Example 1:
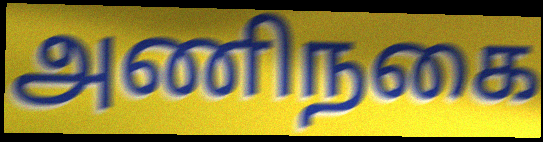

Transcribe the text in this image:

அணிநகை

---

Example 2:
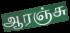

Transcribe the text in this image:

ஆரஞ்சு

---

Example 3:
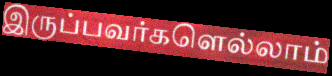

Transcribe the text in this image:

இருப்பவர்களெல்லாம்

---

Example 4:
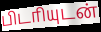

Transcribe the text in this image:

பிடரியுடன்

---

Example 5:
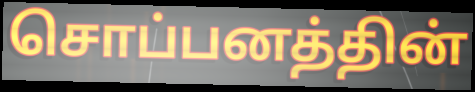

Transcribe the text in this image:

சொப்பனத்தின்